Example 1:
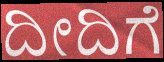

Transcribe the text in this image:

ದೀದಿಗೆ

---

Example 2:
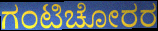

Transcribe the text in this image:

ಗಂಟಿಚೋರರ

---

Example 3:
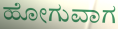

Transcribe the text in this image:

ಹೋಗುವಾಗ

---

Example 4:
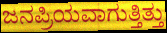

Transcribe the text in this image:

ಜನಪ್ರಿಯವಾಗುತ್ತಿತ್ತು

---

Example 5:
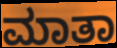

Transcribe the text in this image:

ಮಾತಾ